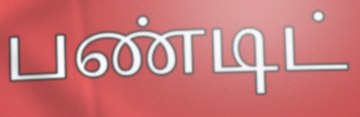
பண்டிட்